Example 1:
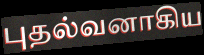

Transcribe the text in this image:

புதல்வனாகிய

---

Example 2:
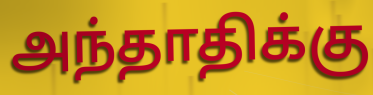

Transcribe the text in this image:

அந்தாதிக்கு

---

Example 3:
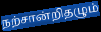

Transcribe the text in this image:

நற்சான்றிதழும்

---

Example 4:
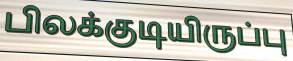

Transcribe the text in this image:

பிலக்குடியிருப்பு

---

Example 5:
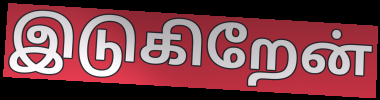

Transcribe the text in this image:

இடுகிறேன்